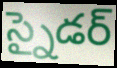
స్నైడర్